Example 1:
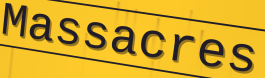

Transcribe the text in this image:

Massacres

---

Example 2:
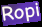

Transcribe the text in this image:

Ropi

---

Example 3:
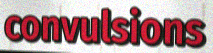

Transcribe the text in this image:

convulsions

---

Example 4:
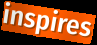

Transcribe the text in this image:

inspires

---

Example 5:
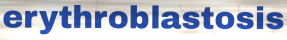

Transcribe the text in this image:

erythroblastosis